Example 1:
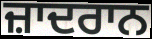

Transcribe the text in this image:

ਜ਼ਾਦਰਾਨ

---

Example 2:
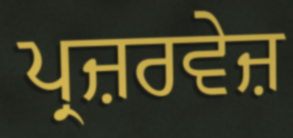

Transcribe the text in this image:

ਪ੍ਰਜ਼ਰਵੇਜ਼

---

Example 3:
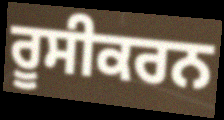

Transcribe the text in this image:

ਰੂਸੀਕਰਨ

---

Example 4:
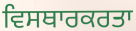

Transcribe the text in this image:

ਵਿਸਥਾਰਕਰਤਾ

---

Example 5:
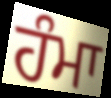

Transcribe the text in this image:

ਹੰਮਾ